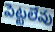
పెట్టలేవు